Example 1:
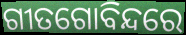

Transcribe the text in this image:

ଗୀତଗୋବିନ୍ଦରେ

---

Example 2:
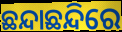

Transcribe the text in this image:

ଛନ୍ଦାଛନ୍ଦିରେ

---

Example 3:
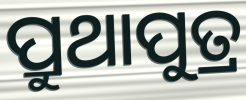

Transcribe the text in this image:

ପ୍ରୁଥାପୁତ୍ର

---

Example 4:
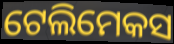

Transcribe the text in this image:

ଟେଲିମେକସ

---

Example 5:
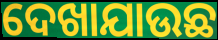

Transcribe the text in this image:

ଦେଖାଯାଉଛ